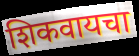
शिकवायचा